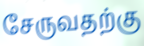
சேருவதற்கு